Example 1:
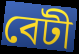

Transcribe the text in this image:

বেটী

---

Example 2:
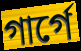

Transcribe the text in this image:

গাৰ্গে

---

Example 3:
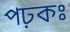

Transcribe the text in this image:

পঢ়কঃ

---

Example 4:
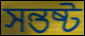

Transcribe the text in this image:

সন্তষ্ট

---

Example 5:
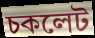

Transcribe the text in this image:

চকলেট